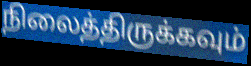
நிலைத்திருக்கவும்